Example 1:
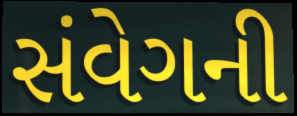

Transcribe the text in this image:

સંવેગની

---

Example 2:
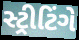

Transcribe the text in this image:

સ્ટ્રીટિંગે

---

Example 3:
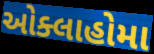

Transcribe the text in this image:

ઓક્લાહોમા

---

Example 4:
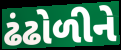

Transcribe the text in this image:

ઢંઢોળીને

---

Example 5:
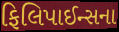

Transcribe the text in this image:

ફિલિપાઈન્સના